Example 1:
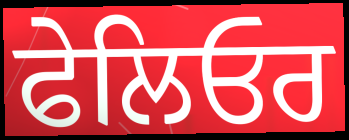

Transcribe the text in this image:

ਫੇਲਿਓਰ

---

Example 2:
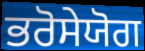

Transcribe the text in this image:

ਭਰੋਸੇਯੋਗ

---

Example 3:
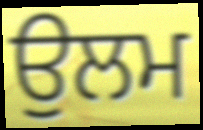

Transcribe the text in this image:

ਉਲਮ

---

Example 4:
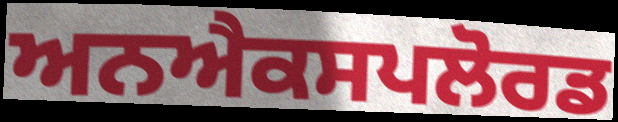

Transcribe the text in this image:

ਅਨਐਕਸਪਲੋਰਡ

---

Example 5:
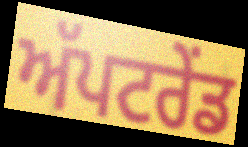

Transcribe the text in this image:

ਅੱਪਟਰੇਂਡ